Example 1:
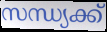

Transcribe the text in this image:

സന്ധ്യക്ക്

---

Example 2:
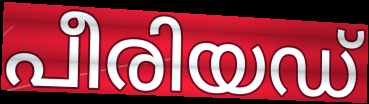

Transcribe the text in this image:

പീരിയഡ്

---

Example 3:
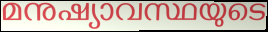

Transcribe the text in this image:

മനുഷ്യാവസ്ഥയുടെ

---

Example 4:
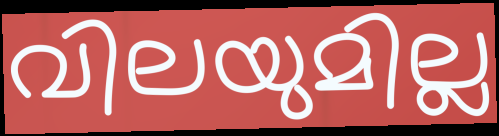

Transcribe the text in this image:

വിലയുമില്ല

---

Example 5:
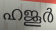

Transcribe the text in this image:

ഹജൂർ